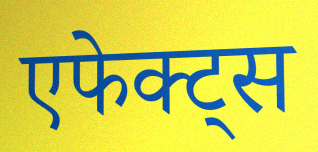
एफेक्ट्स